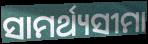
ସାମର୍ଥ୍ୟସୀମା